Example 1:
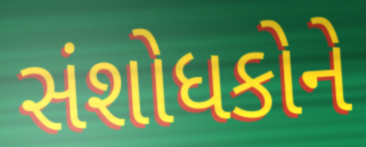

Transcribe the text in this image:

સંશોધકોને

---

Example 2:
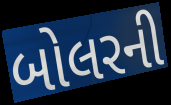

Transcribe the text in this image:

બોલરની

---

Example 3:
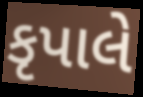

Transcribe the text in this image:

કૃપાલે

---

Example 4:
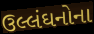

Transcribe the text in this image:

ઉલ્લંઘનોના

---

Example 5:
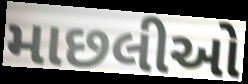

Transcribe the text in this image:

માછલીઓ